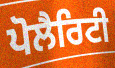
ਪੋਲੈਰਿਟੀ